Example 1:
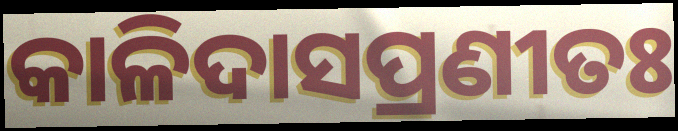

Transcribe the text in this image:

କାଳିଦାସପ୍ରଣୀତଃ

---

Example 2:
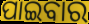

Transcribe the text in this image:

ପାଇବାର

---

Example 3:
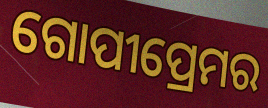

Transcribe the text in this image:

ଗୋପୀପ୍ରେମର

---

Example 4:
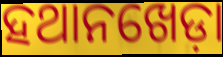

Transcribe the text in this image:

ହଥାନଖେଡ଼ା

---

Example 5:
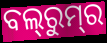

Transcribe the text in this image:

ବଲ୍‍ରୁମ୍‌ର